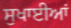
ਸੁਖਾਈਆਂ